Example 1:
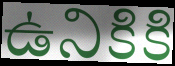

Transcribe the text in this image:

ఉనికికి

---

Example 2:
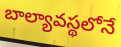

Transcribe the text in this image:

బాల్యావస్థలోనే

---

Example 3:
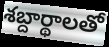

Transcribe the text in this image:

శబ్దార్థాలతో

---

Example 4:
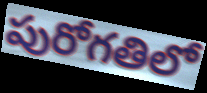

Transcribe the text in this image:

పురోగతిలో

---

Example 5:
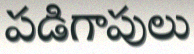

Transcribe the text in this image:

పడిగాపులు